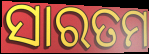
ସାରତମ